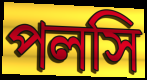
পলসি